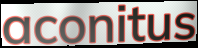
aconitus